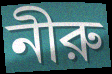
নীরু